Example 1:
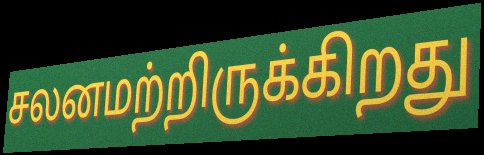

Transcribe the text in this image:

சலனமற்றிருக்கிறது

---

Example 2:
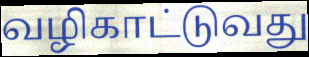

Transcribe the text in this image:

வழிகாட்டுவது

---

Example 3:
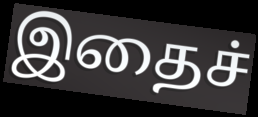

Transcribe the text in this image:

இதைச்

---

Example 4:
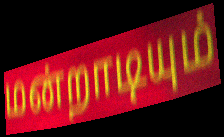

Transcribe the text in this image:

மன்றாடியும்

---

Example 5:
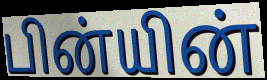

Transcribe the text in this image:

பின்யின்